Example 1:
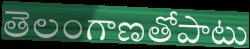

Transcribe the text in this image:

తెలంగాణతోపాటు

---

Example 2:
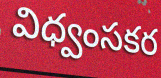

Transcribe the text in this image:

విధ్వంసకర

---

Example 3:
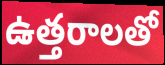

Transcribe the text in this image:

ఉత్తరాలతో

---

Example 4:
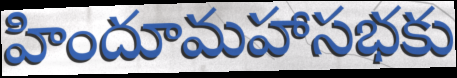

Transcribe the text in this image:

హిందూమహాసభకు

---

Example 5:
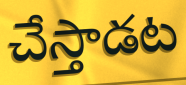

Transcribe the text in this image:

చేస్తాడట